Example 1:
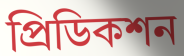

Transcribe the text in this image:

প্রিডিকশন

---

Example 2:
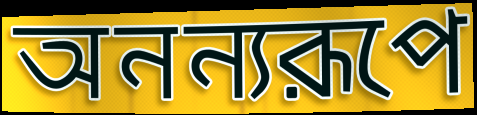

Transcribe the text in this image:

অনন্যরূপে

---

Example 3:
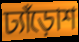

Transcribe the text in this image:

ঢ্যাঁড়োশ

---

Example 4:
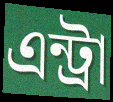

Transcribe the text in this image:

এন্ট্রা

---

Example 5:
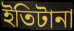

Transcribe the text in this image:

ইতিটানা